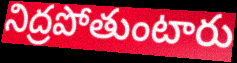
నిద్రపోతుంటారు